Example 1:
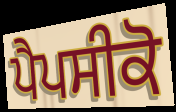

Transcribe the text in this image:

ਪੈਪਸੀਕੋ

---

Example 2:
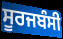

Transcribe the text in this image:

ਸੂਰਜਬੰਸੀ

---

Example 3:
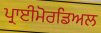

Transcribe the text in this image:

ਪ੍ਰਾਈਮੋਰਡਿਅਲ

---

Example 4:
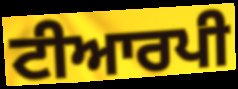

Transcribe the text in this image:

ਟੀਆਰਪੀ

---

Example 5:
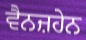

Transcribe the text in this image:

ਵੈਨਜ਼ਹੇਨ